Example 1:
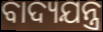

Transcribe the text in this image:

ବାଦ୍ୟଯନ୍ତ୍ର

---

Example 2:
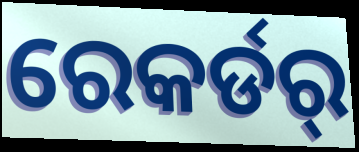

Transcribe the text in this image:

ରେକର୍ଡର୍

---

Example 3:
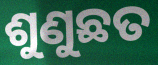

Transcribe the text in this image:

ଶୁଣୁଛତ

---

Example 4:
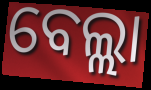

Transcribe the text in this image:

ବେଲ୍ଲା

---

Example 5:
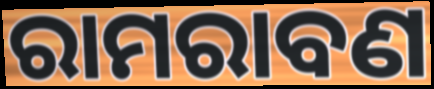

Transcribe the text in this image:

ରାମରାବଣ